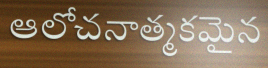
ఆలోచనాత్మకమైన